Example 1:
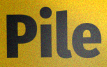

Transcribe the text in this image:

Pile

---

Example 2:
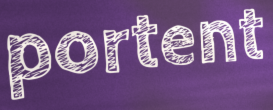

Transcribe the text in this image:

portent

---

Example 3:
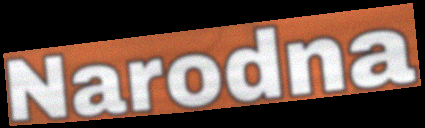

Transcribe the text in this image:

Narodna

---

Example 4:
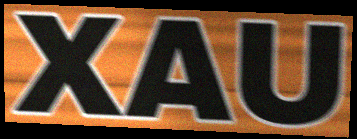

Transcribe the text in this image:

XAU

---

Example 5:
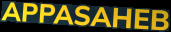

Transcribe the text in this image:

APPASAHEB